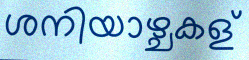
ശനിയാഴ്ചകള്